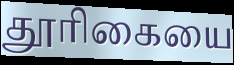
தூரிகையை